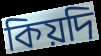
কিয়দি